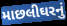
માછલીઘરનું